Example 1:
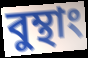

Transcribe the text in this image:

বুম্থাং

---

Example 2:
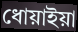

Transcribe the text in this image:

ধোয়াইয়া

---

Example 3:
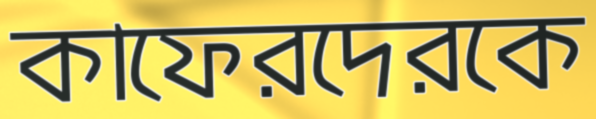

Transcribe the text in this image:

কাফেরদেরকে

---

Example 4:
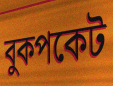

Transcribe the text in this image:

বুকপকেট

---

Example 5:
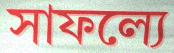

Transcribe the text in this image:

সাফল্যে